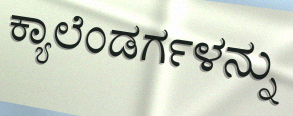
ಕ್ಯಾಲೆಂಡರ್ಗಳನ್ನು